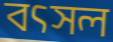
বৎসল